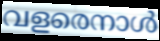
വളരെനാൾ